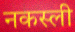
नकस्ली